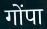
गोंपा